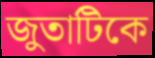
জুতাটিকে